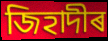
জিহাদীৰ